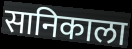
सानिकाला